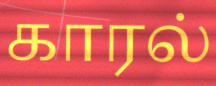
காரல்